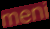
meni